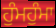
ਹੁੰਮਹੁੰਮਾ